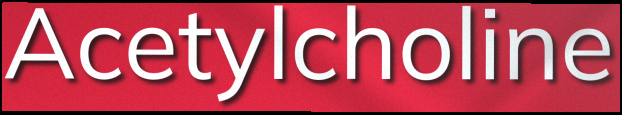
Acetylcholine